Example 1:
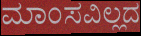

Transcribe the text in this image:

ಮಾಂಸವಿಲ್ಲದ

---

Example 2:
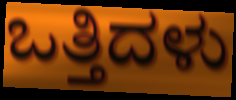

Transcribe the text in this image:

ಒತ್ತಿದಳು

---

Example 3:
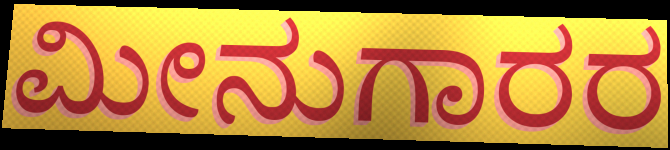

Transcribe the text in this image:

ಮೀನುಗಾರರ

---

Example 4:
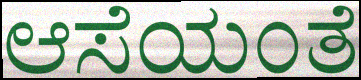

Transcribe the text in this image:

ಆಸೆಯಂತೆ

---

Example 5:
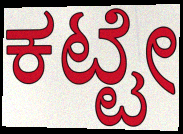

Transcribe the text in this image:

ಕಟ್ಟೇ